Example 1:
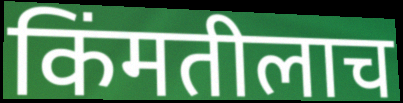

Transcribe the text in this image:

किंमतीलाच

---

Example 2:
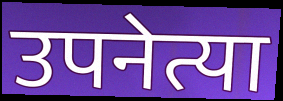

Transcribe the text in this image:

उपनेत्या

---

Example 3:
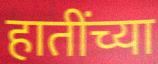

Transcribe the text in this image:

हातींच्या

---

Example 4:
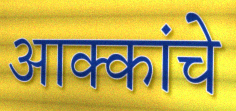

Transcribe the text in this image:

आक्कांचे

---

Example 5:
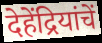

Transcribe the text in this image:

देहेंद्रियांचें